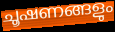
ചൂഷണങ്ങളും